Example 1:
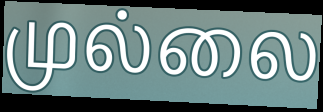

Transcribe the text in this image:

முல்லை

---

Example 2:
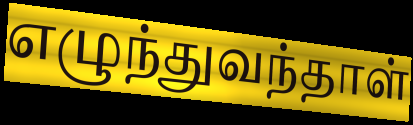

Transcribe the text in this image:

எழுந்துவந்தாள்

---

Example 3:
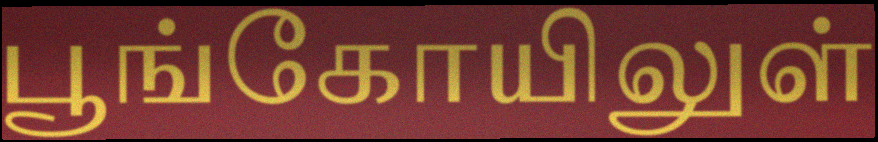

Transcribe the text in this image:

பூங்கோயிலுள்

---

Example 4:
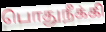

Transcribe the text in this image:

பொதுநீக்கி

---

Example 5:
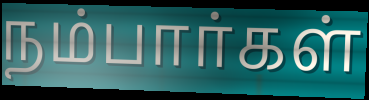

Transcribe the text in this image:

நம்பார்கள்